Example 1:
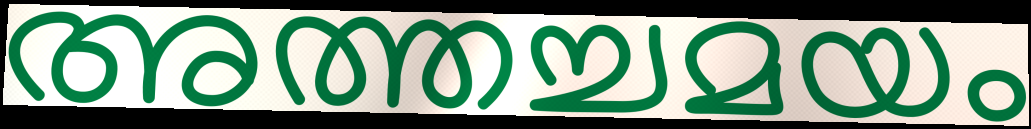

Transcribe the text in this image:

അത്തച്ചമയം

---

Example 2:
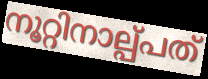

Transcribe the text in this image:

നൂറ്റിനാല്പ്പത്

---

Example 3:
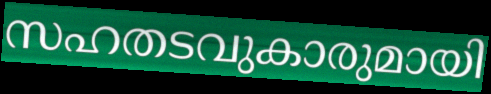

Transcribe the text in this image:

സഹതടവുകാരുമായി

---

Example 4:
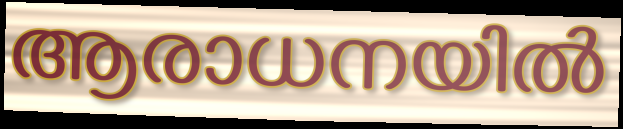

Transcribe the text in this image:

ആരാധനയിൽ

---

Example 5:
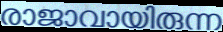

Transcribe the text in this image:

രാജാവായിരുന്ന